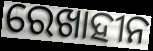
ରେଖାହୀନ